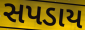
સપડાય